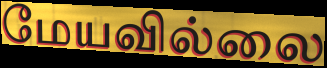
மேயவில்லை